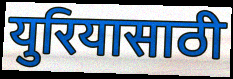
युरियासाठी